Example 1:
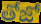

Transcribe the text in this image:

తోజో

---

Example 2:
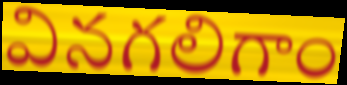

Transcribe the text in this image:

వినగలిగాం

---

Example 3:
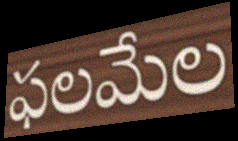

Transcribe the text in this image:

ఫలమేల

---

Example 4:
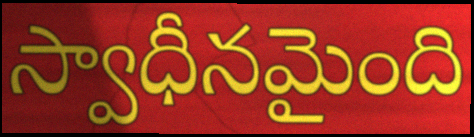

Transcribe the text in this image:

స్వాధీనమైంది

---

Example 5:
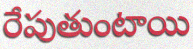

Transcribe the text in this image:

రేపుతుంటాయి